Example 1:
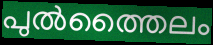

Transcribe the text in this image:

പുൽത്തൈലം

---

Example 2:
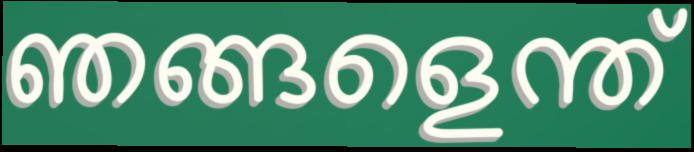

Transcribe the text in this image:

ഞങ്ങളെന്ത്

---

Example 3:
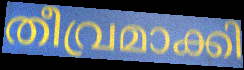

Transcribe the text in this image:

തീവ്രമാക്കി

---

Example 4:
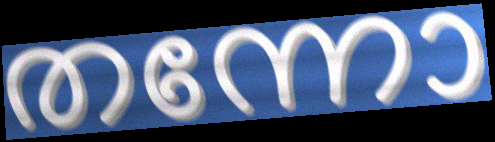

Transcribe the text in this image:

തന്നോ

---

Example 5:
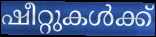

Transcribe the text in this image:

ഷീറ്റുകൾക്ക്